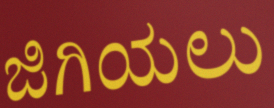
ಜಿಗಿಯಲು